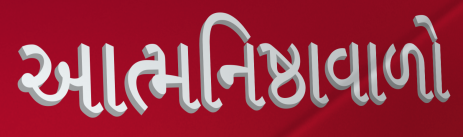
આત્મનિષ્ઠાવાળો